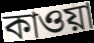
কাওয়া